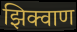
झिक्वाण